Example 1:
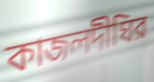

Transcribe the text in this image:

কাজলদীঘির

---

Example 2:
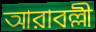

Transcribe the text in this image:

আরাবল্লী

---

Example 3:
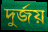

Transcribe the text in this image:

দুর্জয়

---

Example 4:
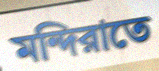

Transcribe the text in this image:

মন্দিরাতে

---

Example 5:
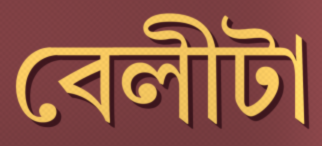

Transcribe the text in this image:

বেলীটা